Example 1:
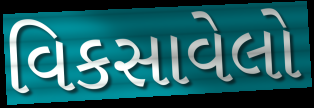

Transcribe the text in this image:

વિકસાવેલો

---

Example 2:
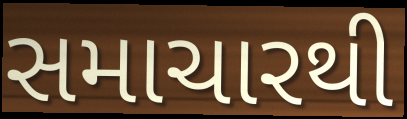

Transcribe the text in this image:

સમાચારથી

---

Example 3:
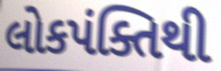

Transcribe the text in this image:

લોકપંક્તિથી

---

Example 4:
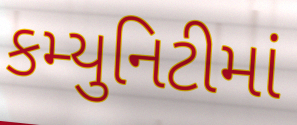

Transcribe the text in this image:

કમ્યુનિટીમાં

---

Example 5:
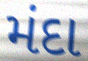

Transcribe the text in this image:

મંદા